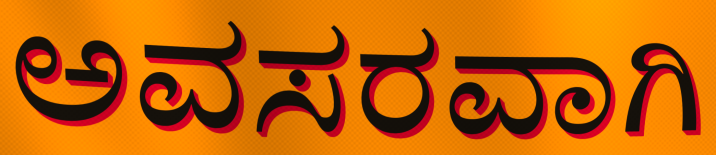
ಅವಸರವಾಗಿ